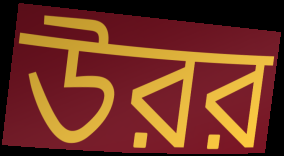
উরর